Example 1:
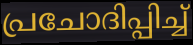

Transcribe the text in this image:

പ്രചോദിപ്പിച്ച്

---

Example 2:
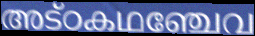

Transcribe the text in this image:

അട്ഠകഥഞ്ചേവ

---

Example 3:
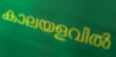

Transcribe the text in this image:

കാലയളവിൽ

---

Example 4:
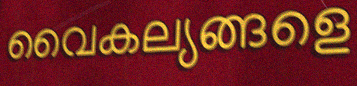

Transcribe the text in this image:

വൈകല്യങ്ങളെ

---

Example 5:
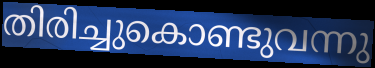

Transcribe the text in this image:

തിരിച്ചുകൊണ്ടുവന്നു